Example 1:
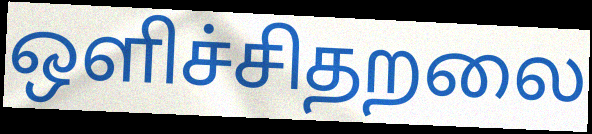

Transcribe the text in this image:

ஒளிச்சிதறலை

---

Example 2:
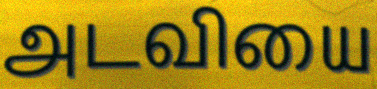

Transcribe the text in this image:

அடவியை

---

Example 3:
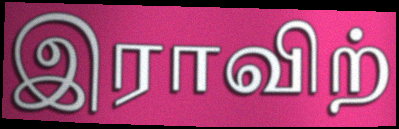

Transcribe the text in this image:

இராவிற்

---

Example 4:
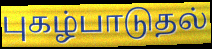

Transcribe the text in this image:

புகழ்பாடுதல்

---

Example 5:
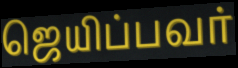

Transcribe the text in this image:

ஜெயிப்பவர்